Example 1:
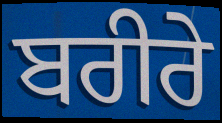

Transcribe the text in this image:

ਬਰੀਰੇ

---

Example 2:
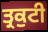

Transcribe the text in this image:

ਤ੍ਰਕੁਟੀ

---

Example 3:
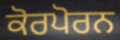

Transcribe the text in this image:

ਕੋਰਪੋਰਨ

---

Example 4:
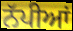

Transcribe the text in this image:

ਨੱਪੀਆਂ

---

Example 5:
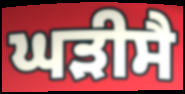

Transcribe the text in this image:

ਘੜੀਸੈ